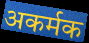
अकर्मक